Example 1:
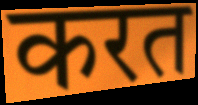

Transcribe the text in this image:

करत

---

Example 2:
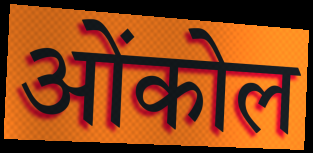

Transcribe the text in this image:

ओंकोल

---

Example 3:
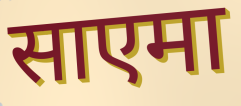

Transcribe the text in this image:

साएमा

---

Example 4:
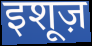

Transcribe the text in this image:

इशूज़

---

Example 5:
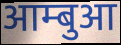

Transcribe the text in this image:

आम्बुआ